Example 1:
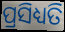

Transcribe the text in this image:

ପ୍ରସିଧ୍ୟତି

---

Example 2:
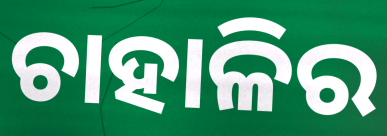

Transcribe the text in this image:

ଚାହାଳିର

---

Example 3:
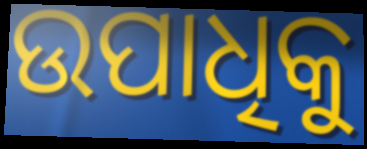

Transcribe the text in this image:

ଉପାଧିକୁ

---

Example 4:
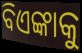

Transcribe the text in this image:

ବିଏଙ୍କାକୁ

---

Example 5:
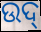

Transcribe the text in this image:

ଉଦ୍